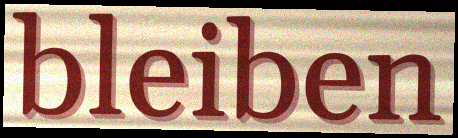
bleiben